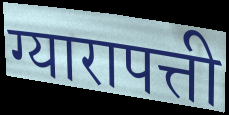
ग्यारापत्ती